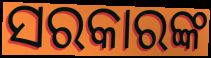
ସରକାରଙ୍କ